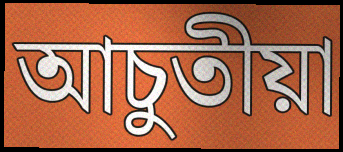
আচুতীয়া